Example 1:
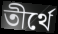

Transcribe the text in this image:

তীর্থে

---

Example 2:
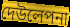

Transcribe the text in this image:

দেউলেপনা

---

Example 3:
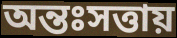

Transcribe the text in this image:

অন্তঃসত্তায়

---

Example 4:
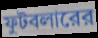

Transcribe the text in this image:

ফুটবলারের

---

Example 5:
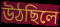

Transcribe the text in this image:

উঠছিলে